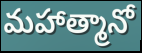
మహాత్మానో